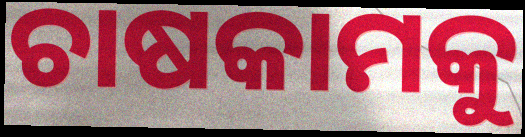
ଚାଷକାମକୁ